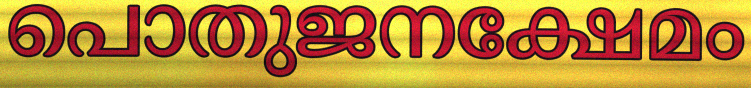
പൊതുജനക്ഷേമം